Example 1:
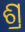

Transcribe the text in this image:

ଶ୍ର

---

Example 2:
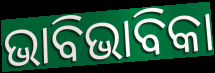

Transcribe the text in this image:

ଭାବିଭାବିକା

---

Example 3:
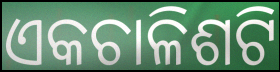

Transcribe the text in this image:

ଏକଚାଳିଶଟି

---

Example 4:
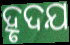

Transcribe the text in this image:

ହୃଦଯ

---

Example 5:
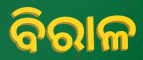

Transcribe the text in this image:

ବିରାଳ